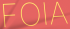
FOIA